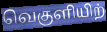
வெகுளியிற்